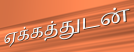
ஏக்கத்துடன்